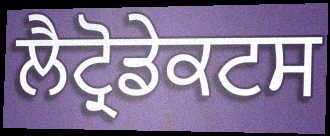
ਲੈਟ੍ਰੋਡੇਕਟਸ